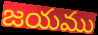
జయము